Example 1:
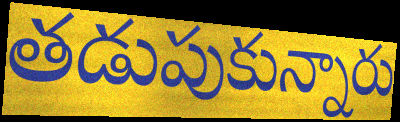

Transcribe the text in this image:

తడుపుకున్నారు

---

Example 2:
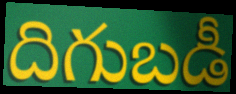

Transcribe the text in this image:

దిగుబడీ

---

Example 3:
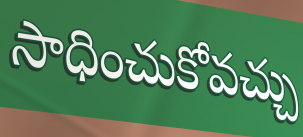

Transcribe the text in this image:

సాధించుకోవచ్చు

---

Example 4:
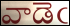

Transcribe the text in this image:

వాడెఁ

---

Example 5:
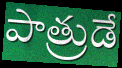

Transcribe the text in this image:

పాత్రుడే